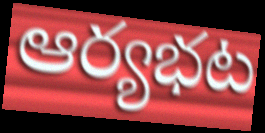
ఆర్యభట